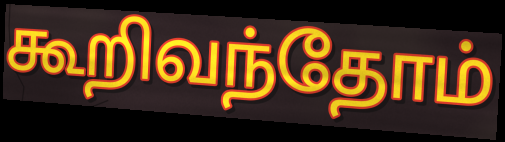
கூறிவந்தோம்